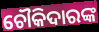
ଚୌକିଦାରଙ୍କ